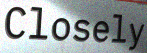
Closely